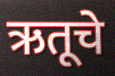
ऋतूचे